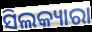
ସିଲକ୍ୟାରା